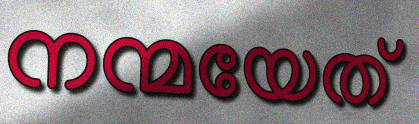
നന്മയേത്